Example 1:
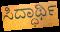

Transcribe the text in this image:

ಸಿದ್ಧಾರ್ಥಿ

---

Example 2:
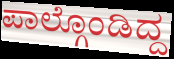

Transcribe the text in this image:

ಪಾಲ್ಗೊಂಡಿದ್ದ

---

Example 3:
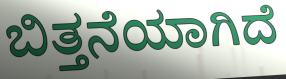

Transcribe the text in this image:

ಬಿತ್ತನೆಯಾಗಿದೆ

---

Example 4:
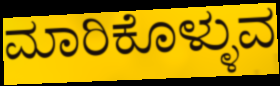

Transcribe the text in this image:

ಮಾರಿಕೊಳ್ಳುವ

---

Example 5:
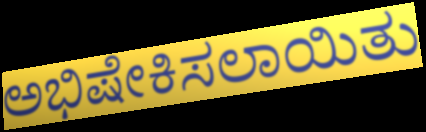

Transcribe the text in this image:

ಅಭಿಷೇಕಿಸಲಾಯಿತು